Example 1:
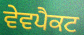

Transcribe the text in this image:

ਵੇਵਪੈਕਟ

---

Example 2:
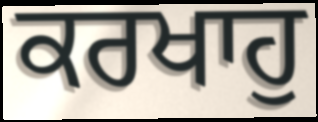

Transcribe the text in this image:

ਕਰਖਾਹੁ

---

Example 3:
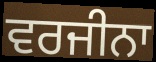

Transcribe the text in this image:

ਵਰਜੀਨਾ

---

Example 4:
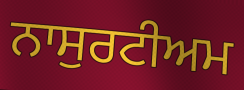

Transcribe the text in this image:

ਨਾਸੁਰਟੀਅਮ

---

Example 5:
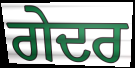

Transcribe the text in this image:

ਗੇਦਰ